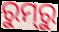
ରୁମ୍‌ରୁ